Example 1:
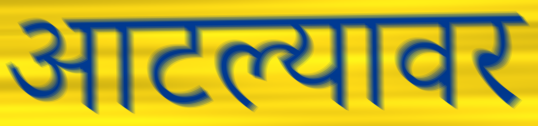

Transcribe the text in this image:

आटल्यावर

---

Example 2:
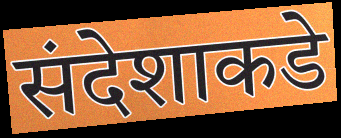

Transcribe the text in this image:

संदेशाकडे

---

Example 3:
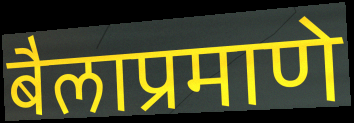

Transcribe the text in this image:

बैलाप्रमाणे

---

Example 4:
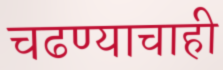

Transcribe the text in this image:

चढण्याचाही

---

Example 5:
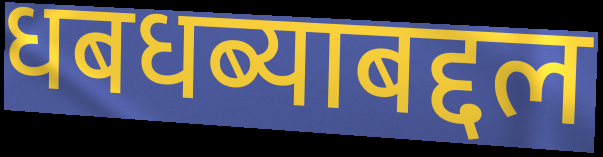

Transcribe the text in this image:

धबधब्याबद्दल